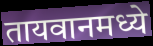
तायवानमध्ये